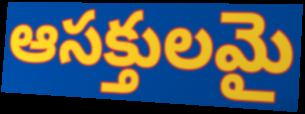
ఆసక్తులమై